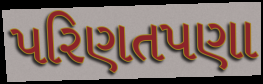
પરિણતપણા